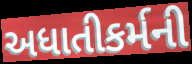
અધાતીકર્મની